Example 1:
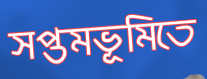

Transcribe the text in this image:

সপ্তমভূমিতে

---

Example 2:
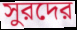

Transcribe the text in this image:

সুরদের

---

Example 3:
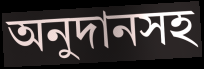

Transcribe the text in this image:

অনুদানসহ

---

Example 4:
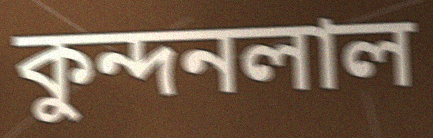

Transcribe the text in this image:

কুন্দনলাল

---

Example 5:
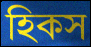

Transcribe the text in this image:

হিকস